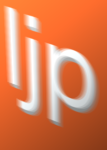
ljp